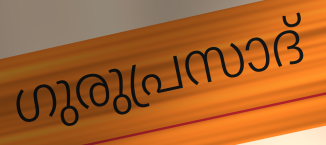
ഗുരുപ്രസാദ്